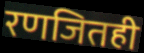
रणजितही